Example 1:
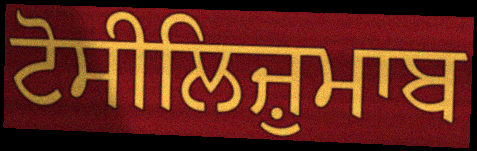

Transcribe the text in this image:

ਟੋਸੀਲਿਜ਼ੁਮਾਬ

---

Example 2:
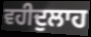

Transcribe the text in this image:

ਵਹੀਦੁਲਾਹ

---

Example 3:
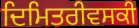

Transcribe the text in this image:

ਦਿਮਿਤਰੀਵਸਕੀ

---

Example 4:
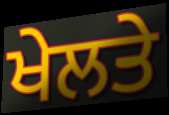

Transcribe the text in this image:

ਖੇਲਤੇ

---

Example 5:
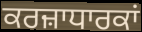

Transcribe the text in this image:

ਕਰਜ਼ਾਧਾਰਕਾਂ